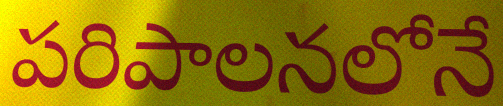
పరిపాలనలోనే